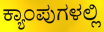
ಕ್ಯಾಂಪುಗಳಲ್ಲಿ